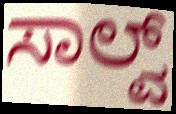
ಸಾಲ್ವ್